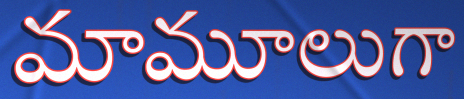
మామూలుగా